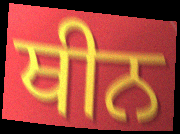
ਥੀਨ